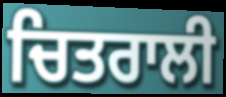
ਚਿਤਰਾਲੀ